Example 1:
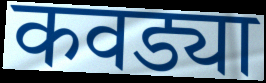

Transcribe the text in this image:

कवड्या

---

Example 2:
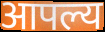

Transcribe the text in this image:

आपल्य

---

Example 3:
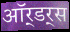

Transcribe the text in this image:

ऑर्डर्स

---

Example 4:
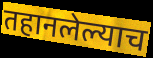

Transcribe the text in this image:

तहानलेल्याच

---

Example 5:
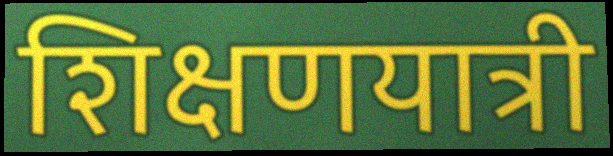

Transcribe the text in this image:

शिक्षणयात्री